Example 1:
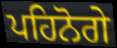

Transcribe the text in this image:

ਪਹਿਨੋਗੇ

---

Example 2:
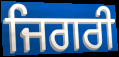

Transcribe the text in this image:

ਜਿਗਰੀ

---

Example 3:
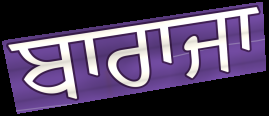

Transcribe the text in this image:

ਬਾਰਾਜਾ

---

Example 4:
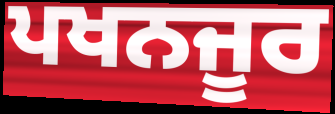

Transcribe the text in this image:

ਪਖਨਜੂਰ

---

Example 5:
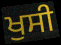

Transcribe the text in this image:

ਖੁਸੀ